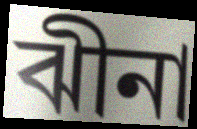
ঝীনা